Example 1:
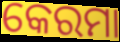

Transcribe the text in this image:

କେରମା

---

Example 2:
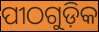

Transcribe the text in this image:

ପୀଠଗୁଡ଼ିକ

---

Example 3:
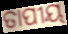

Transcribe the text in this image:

ତାପୀୟ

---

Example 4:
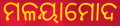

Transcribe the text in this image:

ମଳୟାମୋଦ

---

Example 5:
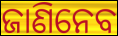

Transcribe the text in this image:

ଜାଣିନେବ